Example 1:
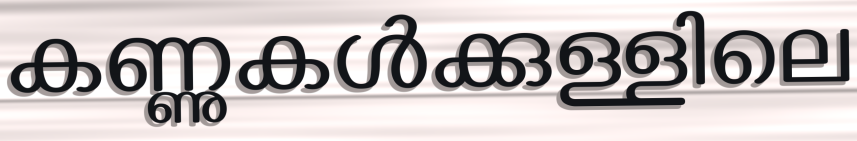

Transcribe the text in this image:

കണ്ണുകൾക്കുള്ളിലെ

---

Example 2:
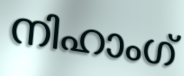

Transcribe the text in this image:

നിഹാംഗ്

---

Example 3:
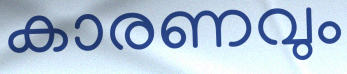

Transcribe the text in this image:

കാരണവും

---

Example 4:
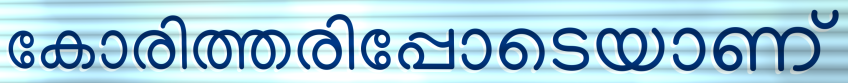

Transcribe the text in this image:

കോരിത്തരിപ്പോടെയാണ്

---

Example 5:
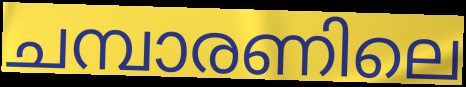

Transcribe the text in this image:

ചമ്പാരണിലെ